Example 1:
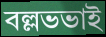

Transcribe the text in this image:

বল্লভভাই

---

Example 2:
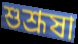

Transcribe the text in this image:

শুশ্রূষা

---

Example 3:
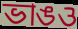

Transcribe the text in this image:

ভাঙও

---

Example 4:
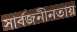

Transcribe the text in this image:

সার্বজনীনতায়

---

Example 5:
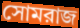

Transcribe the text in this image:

সোমরাজ